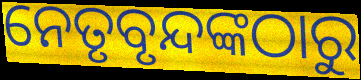
ନେତୃବୃନ୍ଦଙ୍କଠାରୁ